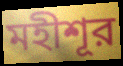
মহীশূর